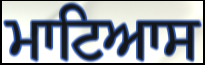
ਮਾਟਿਆਸ